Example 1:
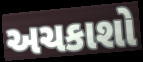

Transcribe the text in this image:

અચકાશો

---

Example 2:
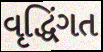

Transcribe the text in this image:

વૃદ્ધિંગત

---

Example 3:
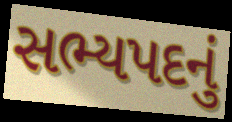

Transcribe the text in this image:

સભ્યપદનું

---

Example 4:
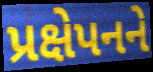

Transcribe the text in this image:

પ્રક્ષેપનને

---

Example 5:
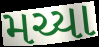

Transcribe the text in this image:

મચ્યા